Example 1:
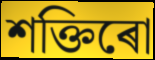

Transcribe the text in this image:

শক্তিৰো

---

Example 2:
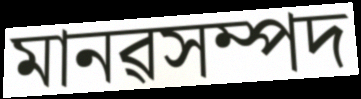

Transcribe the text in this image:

মানৱসম্পদ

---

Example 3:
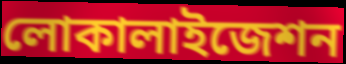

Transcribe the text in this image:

লোকালাইজেশন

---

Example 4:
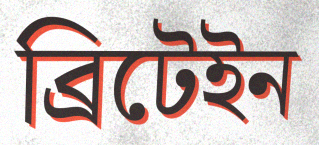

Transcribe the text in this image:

ব্ৰিটেইন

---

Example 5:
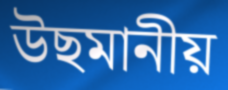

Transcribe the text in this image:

উছমানীয়